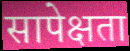
सापेक्षता